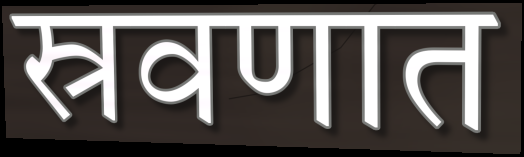
स्रवणात